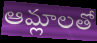
ఆమ్లాలతో